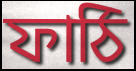
ফাঠি